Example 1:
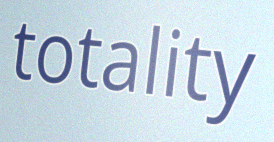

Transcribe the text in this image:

totality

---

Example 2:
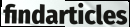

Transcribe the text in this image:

findarticles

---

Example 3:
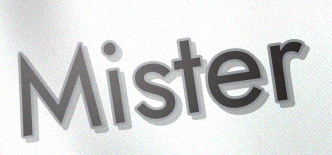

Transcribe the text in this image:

Mister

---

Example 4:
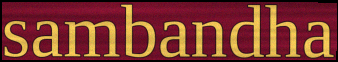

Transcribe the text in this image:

sambandha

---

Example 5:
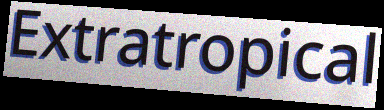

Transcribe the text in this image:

Extratropical